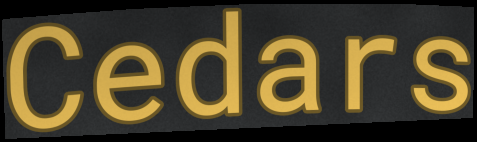
Cedars